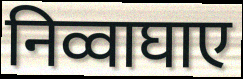
निव्वाघाए